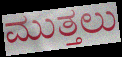
ಮುತ್ತಲು